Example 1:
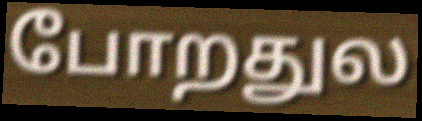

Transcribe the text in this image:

போறதுல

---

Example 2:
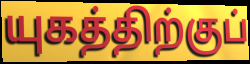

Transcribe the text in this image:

யுகத்திற்குப்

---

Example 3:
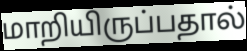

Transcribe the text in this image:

மாறியிருப்பதால்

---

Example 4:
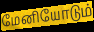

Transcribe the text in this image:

மேனியோடும்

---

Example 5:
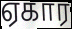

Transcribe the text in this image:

ஏகார